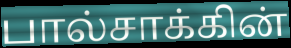
பால்சாக்கின்